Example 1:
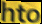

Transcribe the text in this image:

hto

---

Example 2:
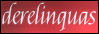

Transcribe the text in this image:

derelinquas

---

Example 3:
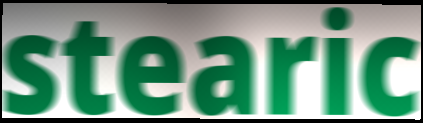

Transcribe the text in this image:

stearic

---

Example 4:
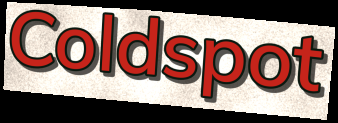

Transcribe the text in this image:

Coldspot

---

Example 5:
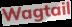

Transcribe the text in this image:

Wagtail